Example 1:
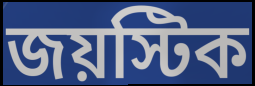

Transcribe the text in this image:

জয়স্টিক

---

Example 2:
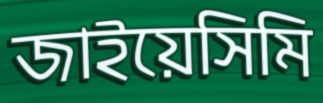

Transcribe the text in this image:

জাইয়েসিমি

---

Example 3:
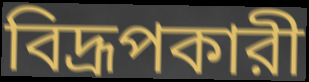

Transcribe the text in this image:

বিদ্রূপকারী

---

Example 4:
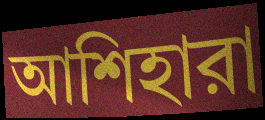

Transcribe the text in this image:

আশিহারা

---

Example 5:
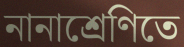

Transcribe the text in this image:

নানাশ্রেণিতে